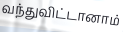
வந்துவிட்டானாம்